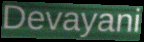
Devayani